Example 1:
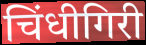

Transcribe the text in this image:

चिंधीगिरी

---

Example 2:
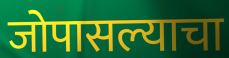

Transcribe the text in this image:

जोपासल्याचा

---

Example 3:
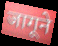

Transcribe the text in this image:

जागूने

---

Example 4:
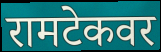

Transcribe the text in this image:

रामटेकवर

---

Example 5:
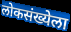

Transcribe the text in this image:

लोकसंख्येला